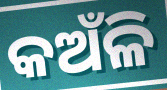
କଅଁଳି